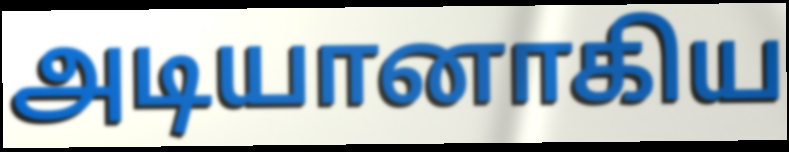
அடியானாகிய